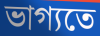
ভাগ্যতে